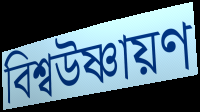
বিশ্বউষ্ণায়ণ